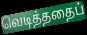
வெடித்ததைப்